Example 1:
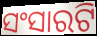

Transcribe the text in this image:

ସଂସାରଟି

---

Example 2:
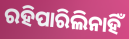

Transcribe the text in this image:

ରହିପାରିଲିନାହିଁ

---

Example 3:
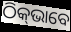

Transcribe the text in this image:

ଠିକ୍‍ଭାବେ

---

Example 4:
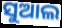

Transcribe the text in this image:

ସୁଆଲ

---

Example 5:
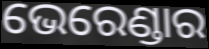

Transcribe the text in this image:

ଭେରେଣ୍ଡାର